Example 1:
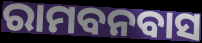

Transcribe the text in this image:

ରାମବନବାସ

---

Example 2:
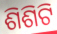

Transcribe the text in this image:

ଶିଶିଟି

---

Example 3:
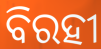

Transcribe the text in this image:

ବିରହୀ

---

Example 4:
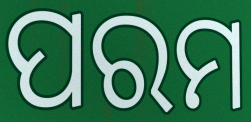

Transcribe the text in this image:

ପରମ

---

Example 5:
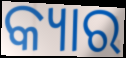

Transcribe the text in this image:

କ୍ୟାର